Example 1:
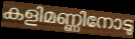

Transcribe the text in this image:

കളിമണ്ണിനോടു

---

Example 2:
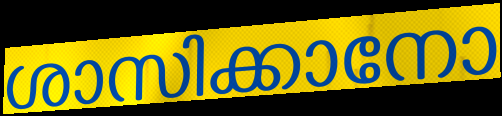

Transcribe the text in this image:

ശാസിക്കാനോ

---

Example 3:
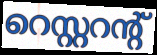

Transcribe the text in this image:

റെസ്റ്ററന്റ്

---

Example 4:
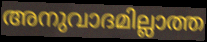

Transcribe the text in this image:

അനുവാദമില്ലാത്ത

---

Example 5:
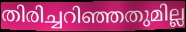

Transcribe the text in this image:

തിരിച്ചറിഞ്ഞതുമില്ല